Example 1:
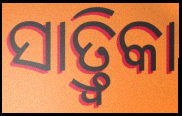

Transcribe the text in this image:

ସାତ୍ତ୍ୱିକା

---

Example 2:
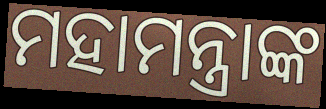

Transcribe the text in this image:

ମହାମନ୍ତ୍ରାଙ୍କ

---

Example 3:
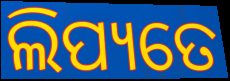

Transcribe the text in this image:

ଲିପ୍ୟତେ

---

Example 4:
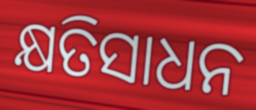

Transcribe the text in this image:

କ୍ଷତିସାଧନ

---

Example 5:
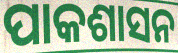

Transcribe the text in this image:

ପାକଶାସନ